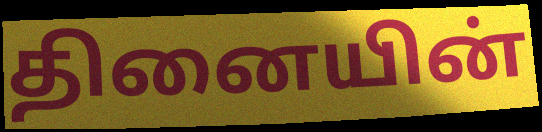
தினையின்